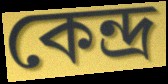
কেন্দ্ৰ